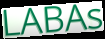
LABAs